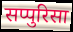
सप्पुरिसा